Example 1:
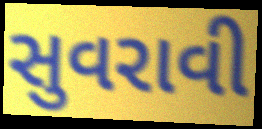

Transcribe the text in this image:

સુવરાવી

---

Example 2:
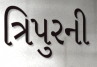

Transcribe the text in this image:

ત્રિપુરની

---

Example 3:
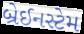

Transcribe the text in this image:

બ્રેઈનસ્ટેમ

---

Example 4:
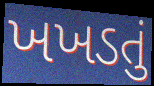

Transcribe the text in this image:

ખખડતું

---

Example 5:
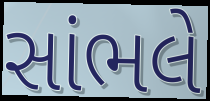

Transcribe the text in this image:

સાંભલે